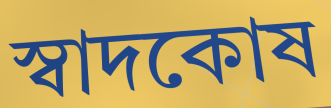
স্বাদকোষ